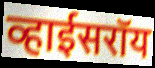
व्हाईसरॉय